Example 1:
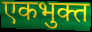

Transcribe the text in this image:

एकभुक्त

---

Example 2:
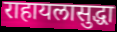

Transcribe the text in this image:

राहायलासुद्धा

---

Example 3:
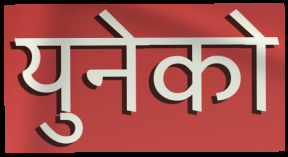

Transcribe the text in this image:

युनेको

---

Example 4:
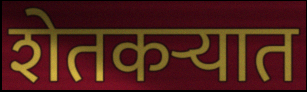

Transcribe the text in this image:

शेतकऱ्यात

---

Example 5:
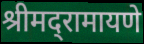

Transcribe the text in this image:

श्रीमद्‌रामायणे